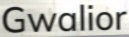
Gwalior